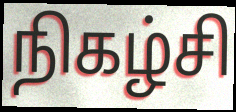
நிகழ்சி